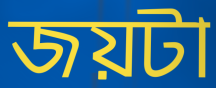
জয়টা